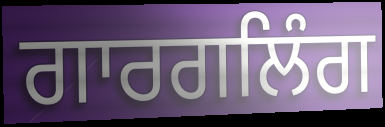
ਗਾਰਗਲਿੰਗ